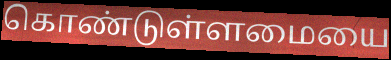
கொண்டுள்ளமையை